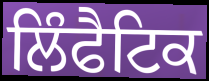
ਲਿੰਫੈਟਿਕ